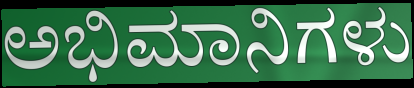
ಅಭಿಮಾನಿಗಳು